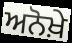
ਅਨੋਖ਼ੇ